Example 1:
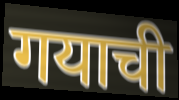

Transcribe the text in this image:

गयाची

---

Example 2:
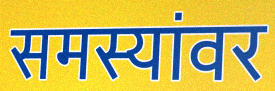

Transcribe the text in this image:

समस्यांवर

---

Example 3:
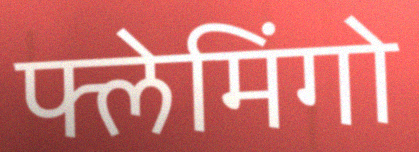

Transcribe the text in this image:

फ्लेमिंगो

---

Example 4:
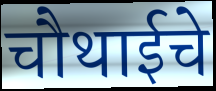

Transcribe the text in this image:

चौथाईचे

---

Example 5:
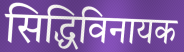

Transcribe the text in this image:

सिद्धिविनायक